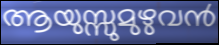
ആയുസ്സുമുഴുവൻ